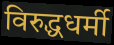
विरुद्धधर्मी